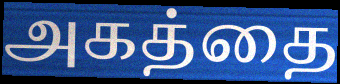
அகத்தை